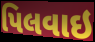
પિલવાઇ